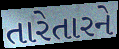
તારેતારને